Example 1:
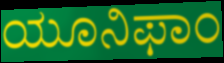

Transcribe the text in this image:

ಯೂನಿಫಾಂ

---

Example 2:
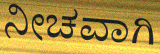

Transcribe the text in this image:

ನೀಚವಾಗಿ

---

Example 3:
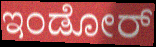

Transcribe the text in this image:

ಇಂಡೋರ್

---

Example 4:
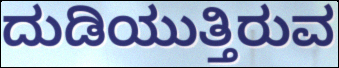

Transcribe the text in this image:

ದುಡಿಯುತ್ತಿರುವ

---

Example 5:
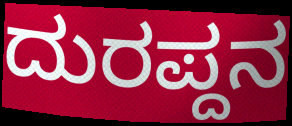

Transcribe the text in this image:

ದುರಪ್ದನ